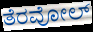
ತೆರವೋಲ್